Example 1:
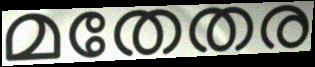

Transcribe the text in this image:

മതേതര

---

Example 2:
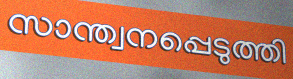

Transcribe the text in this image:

സാന്ത്വനപ്പെടുത്തി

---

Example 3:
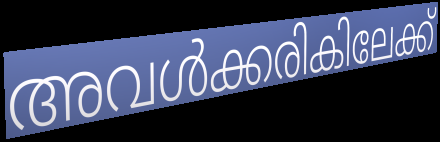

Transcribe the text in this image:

അവൾക്കരികിലേക്ക്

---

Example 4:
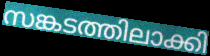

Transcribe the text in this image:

സങ്കടത്തിലാക്കി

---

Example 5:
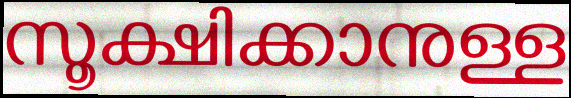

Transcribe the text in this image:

സൂക്ഷിക്കാനുള്ള